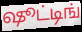
ஷூட்டிங்